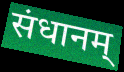
संधानम्